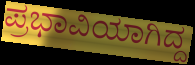
ಪ್ರಭಾವಿಯಾಗಿದ್ದ